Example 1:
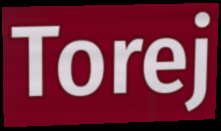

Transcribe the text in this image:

Torej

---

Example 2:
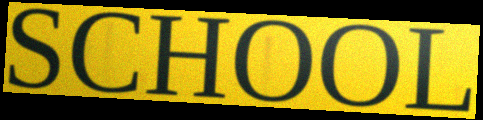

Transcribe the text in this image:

SCHOOL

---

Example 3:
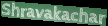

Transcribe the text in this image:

Shravakachar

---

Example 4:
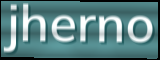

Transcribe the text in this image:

jherno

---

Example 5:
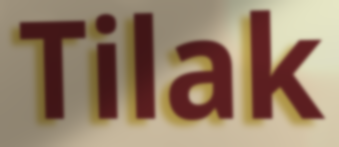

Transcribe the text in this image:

Tilak